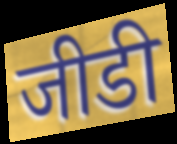
जीडी